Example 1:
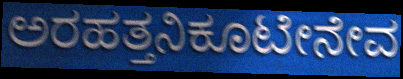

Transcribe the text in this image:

ಅರಹತ್ತನಿಕೂಟೇನೇವ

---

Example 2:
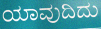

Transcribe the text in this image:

ಯಾವುದಿದು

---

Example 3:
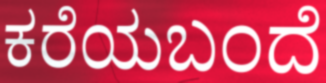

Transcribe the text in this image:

ಕರೆಯಬಂದೆ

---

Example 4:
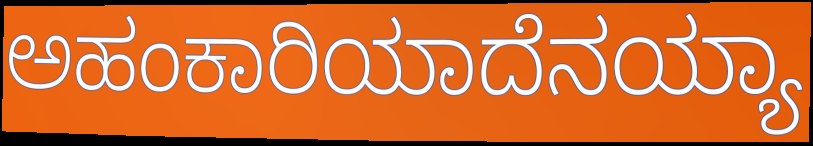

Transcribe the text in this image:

ಅಹಂಕಾರಿಯಾದೆನಯ್ಯಾ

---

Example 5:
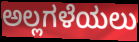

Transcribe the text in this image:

ಅಲ್ಲಗಳೆಯಲು